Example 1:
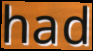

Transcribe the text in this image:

had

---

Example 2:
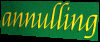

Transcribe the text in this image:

annulling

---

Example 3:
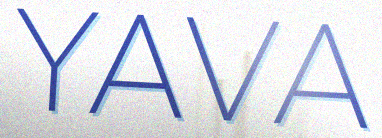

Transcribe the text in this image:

YAVA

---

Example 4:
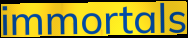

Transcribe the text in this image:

immortals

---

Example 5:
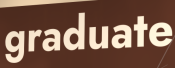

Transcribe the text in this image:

graduate